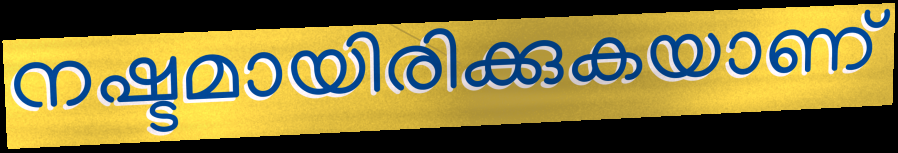
നഷ്ടമായിരിക്കുകയാണ്